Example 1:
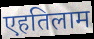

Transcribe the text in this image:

एहतिलाम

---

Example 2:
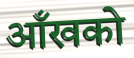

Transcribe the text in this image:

आँखको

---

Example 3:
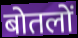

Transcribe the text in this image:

बोतलों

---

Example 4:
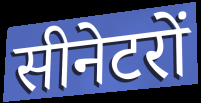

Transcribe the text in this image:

सीनेटरों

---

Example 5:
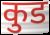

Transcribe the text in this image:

कुड